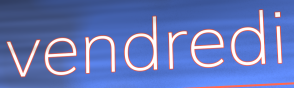
vendredi